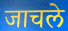
जाचले